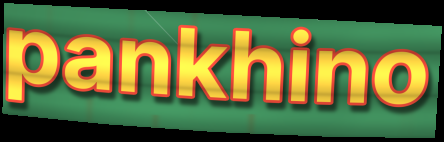
pankhino